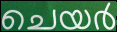
ചെയർ